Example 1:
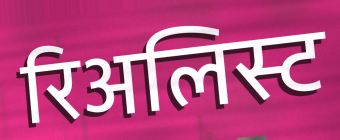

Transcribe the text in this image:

रिअलिस्ट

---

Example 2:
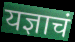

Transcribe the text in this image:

यज्ञाचं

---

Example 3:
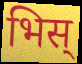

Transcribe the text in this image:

भिस्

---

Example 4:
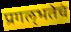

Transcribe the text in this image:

प्रगल्भतेचं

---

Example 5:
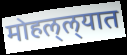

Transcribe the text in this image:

मोहल्ल्यात